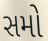
સમો